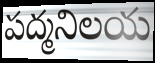
పద్మనిలయ